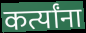
कर्त्यांना